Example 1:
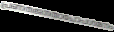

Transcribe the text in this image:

പ്രണതജനതാപോപശമനം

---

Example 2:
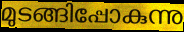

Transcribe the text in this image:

മുടങ്ങിപ്പോകുന്നു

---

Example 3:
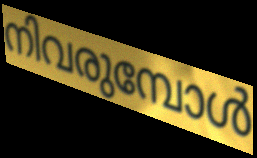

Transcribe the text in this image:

നിവരുമ്പോൾ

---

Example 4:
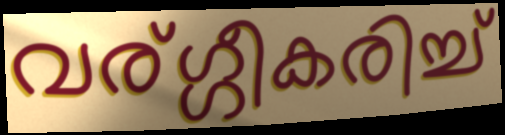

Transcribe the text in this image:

വര്ഗ്ഗീകരിച്ച്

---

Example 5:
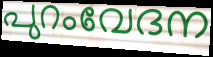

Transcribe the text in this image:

പുറംവേദന